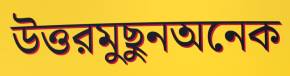
উত্তরমুছুনঅনেক